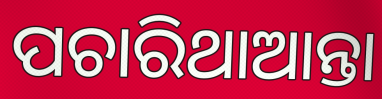
ପଚାରିଥାଆନ୍ତା